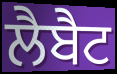
ਲੈਬੈਟ